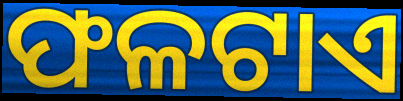
ଫଳଟାଏ